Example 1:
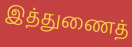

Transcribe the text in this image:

இத்துணைத்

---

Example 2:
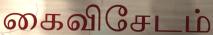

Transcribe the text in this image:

கைவிசேடம்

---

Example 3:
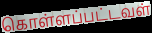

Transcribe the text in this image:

கொள்ளப்பட்டவள்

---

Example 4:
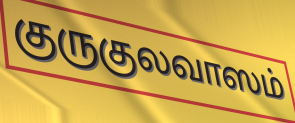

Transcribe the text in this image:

குருகுலவாஸம்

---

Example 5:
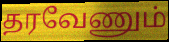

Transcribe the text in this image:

தரவேணும்